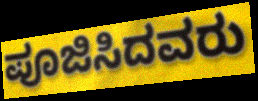
ಪೂಜಿಸಿದವರು